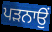
ਪਡ਼ਨਾਉਂ